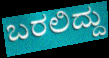
ಬರಲಿದ್ದು